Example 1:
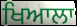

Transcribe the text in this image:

ਖਿਆਲਾ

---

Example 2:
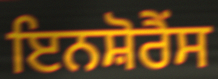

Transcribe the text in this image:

ਇਨਸ਼ੋਰੈਂਸ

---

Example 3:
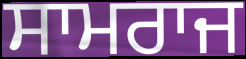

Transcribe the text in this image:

ਸਾਮਰਾਜ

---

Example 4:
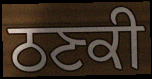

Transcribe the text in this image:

ਠਣਕੀ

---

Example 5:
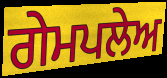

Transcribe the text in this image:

ਗੇਮਪਲੇਅ